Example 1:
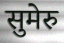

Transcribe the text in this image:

सुमेरु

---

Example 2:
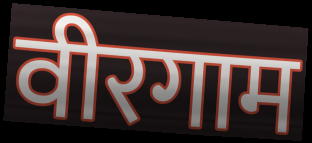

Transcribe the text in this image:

वीरगाम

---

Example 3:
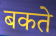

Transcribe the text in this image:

बकते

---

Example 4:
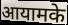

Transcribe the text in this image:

आयामके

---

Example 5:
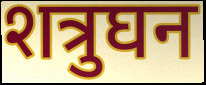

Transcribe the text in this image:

शत्रुघन